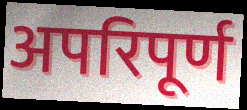
अपरिपूर्ण